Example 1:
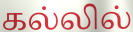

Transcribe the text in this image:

கல்லில்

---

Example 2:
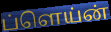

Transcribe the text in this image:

ப்ளெய்ன்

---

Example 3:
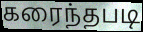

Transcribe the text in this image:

கரைந்தபடி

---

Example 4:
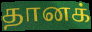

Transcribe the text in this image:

தானக்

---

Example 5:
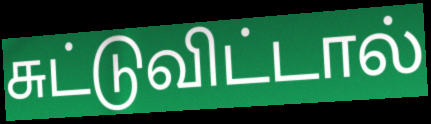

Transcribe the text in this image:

சுட்டுவிட்டால்